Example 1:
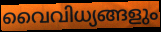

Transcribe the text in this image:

വൈവിധ്യങ്ങളും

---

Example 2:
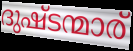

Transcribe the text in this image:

ദുഷ്ടന്മാര്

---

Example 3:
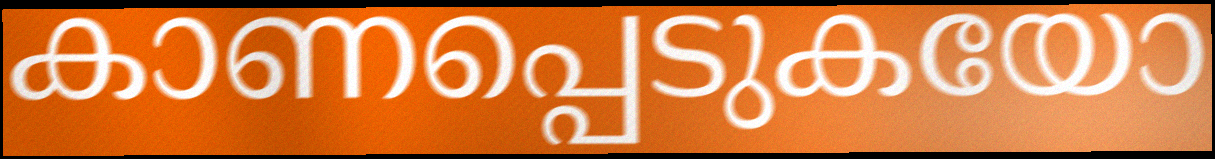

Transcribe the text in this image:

കാണപ്പെടുകയോ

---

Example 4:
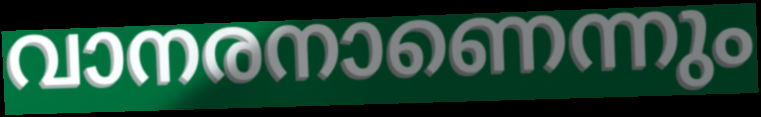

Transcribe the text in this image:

വാനരനാണെന്നും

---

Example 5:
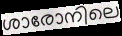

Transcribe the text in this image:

ശാരോനിലെ